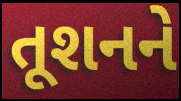
તૂશનને